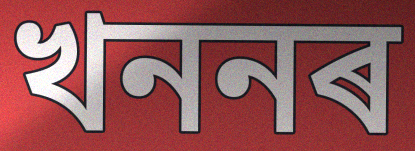
খননৰ